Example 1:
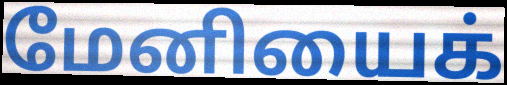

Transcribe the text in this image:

மேனியைக்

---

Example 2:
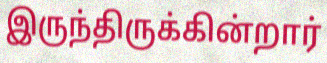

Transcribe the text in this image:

இருந்திருக்கின்றார்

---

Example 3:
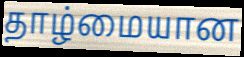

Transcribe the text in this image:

தாழ்மையான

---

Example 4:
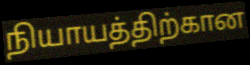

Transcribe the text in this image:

நியாயத்திற்கான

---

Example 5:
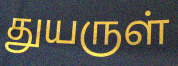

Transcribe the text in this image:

துயருள்